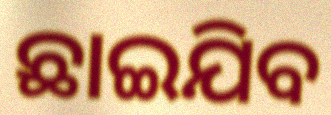
ଛାଇଯିବ